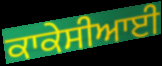
ਕਾਕੇਸੀਆਈ